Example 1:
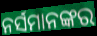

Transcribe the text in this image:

ନର୍ସମାନଙ୍କର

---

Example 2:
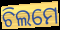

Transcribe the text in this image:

ଚିଲମେ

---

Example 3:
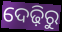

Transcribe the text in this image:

ଦେଢ଼ିରୁ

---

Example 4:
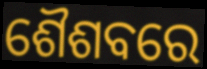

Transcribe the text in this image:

ଶୈଶବରେ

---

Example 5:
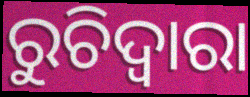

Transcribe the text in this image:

ରୁଚିଦ୍ୱାରା